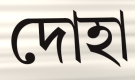
দোহা